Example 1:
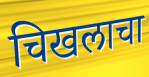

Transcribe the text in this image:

चिखलाचा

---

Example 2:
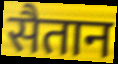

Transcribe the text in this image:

सैतान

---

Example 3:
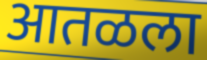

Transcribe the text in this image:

आतळला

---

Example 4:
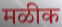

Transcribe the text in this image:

मळीक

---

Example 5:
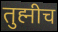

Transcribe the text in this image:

तुह्मीच